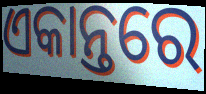
ଏକାନ୍ତରେ